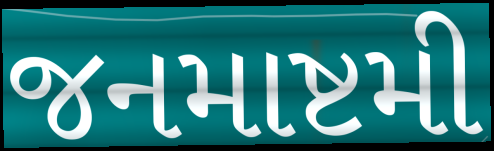
જનમાષ્ટમી